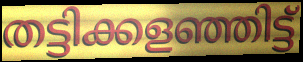
തട്ടിക്കളഞ്ഞിട്ട്